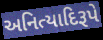
અનિત્યાદિરૂપે